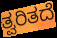
ತ್ವರಿತದೆ